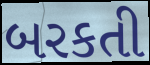
બરકતી